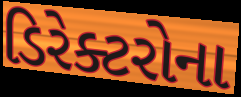
ડિરેક્ટરોના